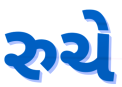
રુચે